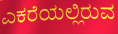
ಎಕರೆಯಲ್ಲಿರುವ